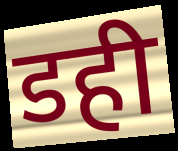
डही